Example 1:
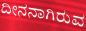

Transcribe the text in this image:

ದೀನನಾಗಿರುವ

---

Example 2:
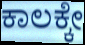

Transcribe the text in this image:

ಕಾಲಕ್ಕೇ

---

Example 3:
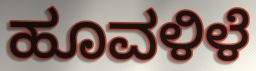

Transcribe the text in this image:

ಹೂವಳಿಳೆ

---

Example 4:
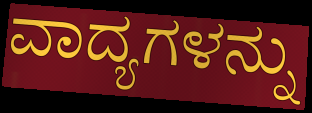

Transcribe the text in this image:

ವಾದ್ಯಗಳನ್ನು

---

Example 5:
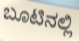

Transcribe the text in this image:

ಬೂಟಿನಲ್ಲಿ